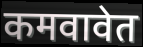
कमवावेत